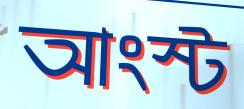
আংস্ট